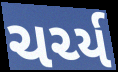
ચર્ચ્ય